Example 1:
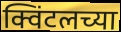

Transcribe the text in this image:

क्विंटलच्या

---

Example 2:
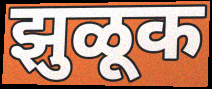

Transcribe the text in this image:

झुळूक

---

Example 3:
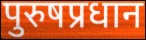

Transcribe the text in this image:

पुरुषप्रधान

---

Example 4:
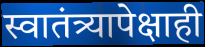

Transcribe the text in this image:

स्वातंत्र्यापेक्षाही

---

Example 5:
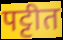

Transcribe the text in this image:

पट्टीत